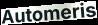
Automeris